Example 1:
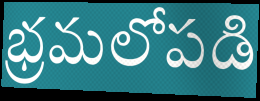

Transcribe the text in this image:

భ్రమలోపడి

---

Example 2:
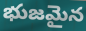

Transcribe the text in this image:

భుజమైన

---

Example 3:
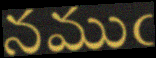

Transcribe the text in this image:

నముఁ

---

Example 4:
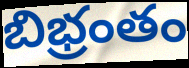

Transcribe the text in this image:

బిభ్రంతం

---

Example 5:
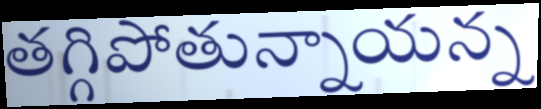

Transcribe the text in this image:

తగ్గిపోతున్నాయన్న